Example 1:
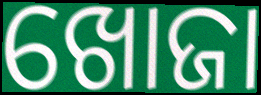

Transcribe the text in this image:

ଖୋଜା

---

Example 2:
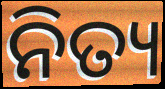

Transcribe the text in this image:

ନିତ୍ୟ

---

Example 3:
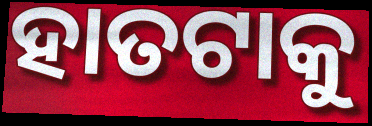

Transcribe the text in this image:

ହାତଟାକୁ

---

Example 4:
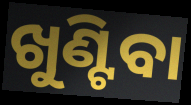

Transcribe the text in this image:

ଖୁଣ୍ଟିବା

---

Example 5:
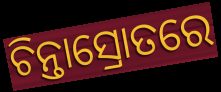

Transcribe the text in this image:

ଚିନ୍ତାସ୍ରୋତରେ